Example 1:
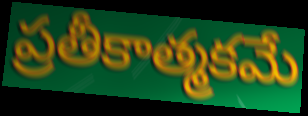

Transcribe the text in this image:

ప్రతీకాత్మకమే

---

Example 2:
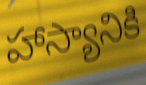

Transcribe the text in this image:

హాస్యానికి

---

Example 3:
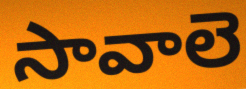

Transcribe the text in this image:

సావాలె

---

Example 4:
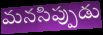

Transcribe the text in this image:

మనసిప్పుడు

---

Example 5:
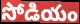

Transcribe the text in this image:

సోడియం